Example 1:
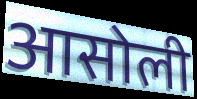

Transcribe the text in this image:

आसोली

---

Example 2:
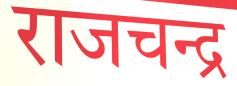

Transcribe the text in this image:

राजचन्द्र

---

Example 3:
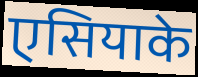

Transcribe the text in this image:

एसियाके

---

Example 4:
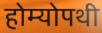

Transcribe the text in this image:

होम्योपथी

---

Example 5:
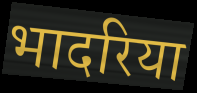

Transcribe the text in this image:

भादरिया